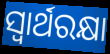
ସ୍ଵାର୍ଥରକ୍ଷା